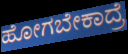
ಹೋಗಬೇಕಾದ್ರೆ